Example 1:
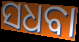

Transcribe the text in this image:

ସଧବା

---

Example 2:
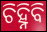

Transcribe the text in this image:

ଚିହ୍ନିବି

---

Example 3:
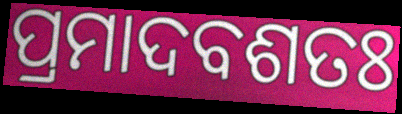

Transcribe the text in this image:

ପ୍ରମାଦବଶତଃ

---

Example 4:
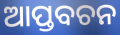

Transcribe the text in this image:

ଆପ୍ତବଚନ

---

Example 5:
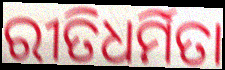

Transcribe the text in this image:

ରୀତିଧର୍ମିତା